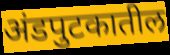
अंडपुटकातील